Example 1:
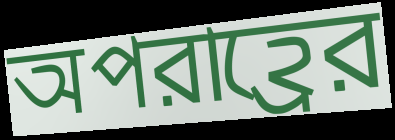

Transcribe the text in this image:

অপরাহ্রের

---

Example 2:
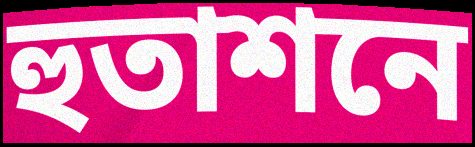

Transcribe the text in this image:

হুতাশনে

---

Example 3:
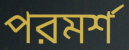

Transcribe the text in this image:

পরমর্শ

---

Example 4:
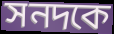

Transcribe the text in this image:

সনদকে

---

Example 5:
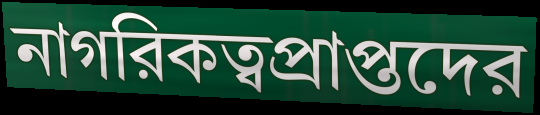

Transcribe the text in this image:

নাগরিকত্বপ্রাপ্তদের